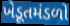
ખેડૂતમંડળો